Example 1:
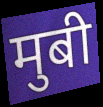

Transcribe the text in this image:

मुबी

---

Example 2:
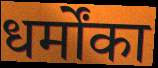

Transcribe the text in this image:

धर्मोंका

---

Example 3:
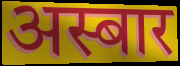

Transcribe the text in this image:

अस्बार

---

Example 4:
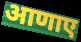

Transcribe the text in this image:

आणाए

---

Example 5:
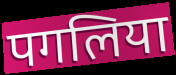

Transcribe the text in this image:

पगलिया